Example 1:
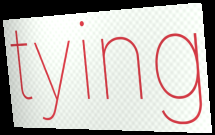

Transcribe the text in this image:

tying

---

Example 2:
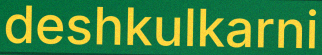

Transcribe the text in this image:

deshkulkarni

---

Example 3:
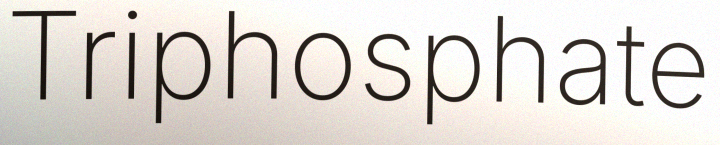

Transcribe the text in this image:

Triphosphate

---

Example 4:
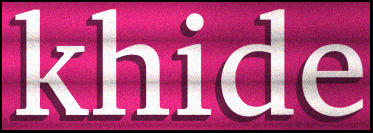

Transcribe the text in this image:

khide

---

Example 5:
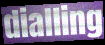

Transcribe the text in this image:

dialling